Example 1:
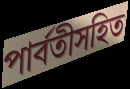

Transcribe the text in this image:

পার্বতীসহিত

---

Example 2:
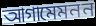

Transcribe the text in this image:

আগামেমনন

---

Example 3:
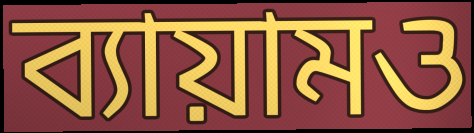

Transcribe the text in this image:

ব্যায়ামও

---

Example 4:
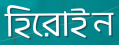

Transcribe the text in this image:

হিরোইন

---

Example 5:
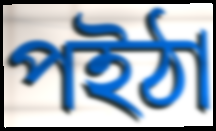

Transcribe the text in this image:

পইঠা